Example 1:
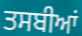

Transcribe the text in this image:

ਤਸਬੀਆਂ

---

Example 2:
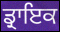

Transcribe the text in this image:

ਡ੍ਰਾਇਕ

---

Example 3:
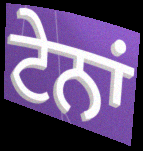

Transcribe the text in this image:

ਟੇਨਾਂ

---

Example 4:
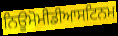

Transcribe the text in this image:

ਨਿਊਮੋਮੀਡੀਆਸਟਿਨਮ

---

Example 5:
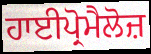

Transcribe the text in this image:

ਹਾਈਪ੍ਰੋਮੈਲੋਜ਼